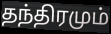
தந்திரமும்